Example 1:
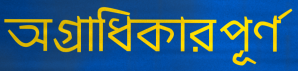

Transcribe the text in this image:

অগ্রাধিকারপূর্ণ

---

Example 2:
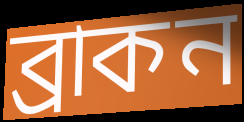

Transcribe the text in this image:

ব্রাকন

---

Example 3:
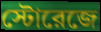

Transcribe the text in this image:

স্টোরেজে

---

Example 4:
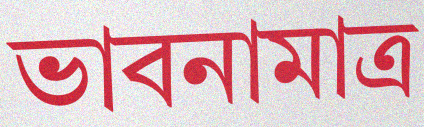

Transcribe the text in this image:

ভাবনামাত্র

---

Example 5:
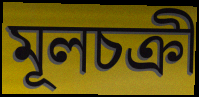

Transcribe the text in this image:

মূলচক্রী